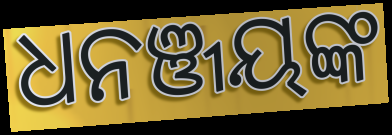
ଧନଞ୍ଜୟଙ୍କ